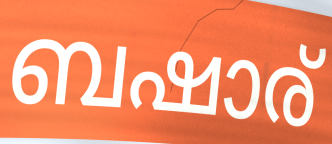
ബഷാര്